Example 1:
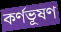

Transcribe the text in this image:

কর্ণভূষণ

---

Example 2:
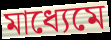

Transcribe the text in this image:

মাধ্যেমে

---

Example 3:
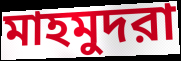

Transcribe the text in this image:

মাহমুদরা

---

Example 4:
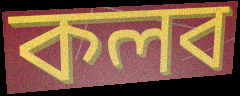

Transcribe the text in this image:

কলব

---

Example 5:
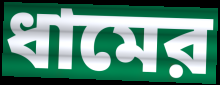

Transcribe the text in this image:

ধামের